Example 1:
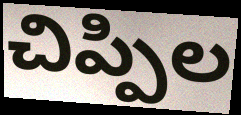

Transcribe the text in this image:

చిప్పిల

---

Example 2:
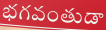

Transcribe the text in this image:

భగవంతుడా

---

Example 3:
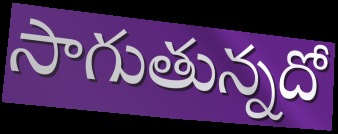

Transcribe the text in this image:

సాగుతున్నదో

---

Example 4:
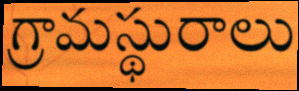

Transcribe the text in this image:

గ్రామస్థురాలు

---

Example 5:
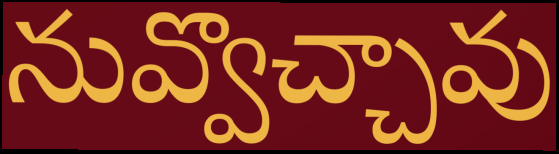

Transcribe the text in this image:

నువ్వొచ్చావు